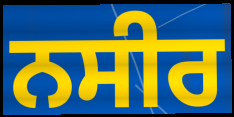
ਨਸੀਰ